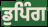
ਡੁਪਿੰਗ